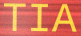
TIA